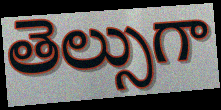
తెల్సుగా